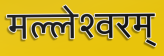
मल्लेश्वरम्